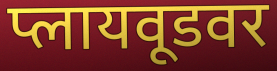
प्लायवूडवर